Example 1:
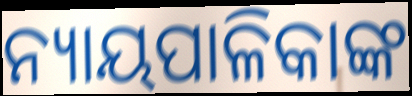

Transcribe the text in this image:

ନ୍ୟାୟପାଳିକାଙ୍କ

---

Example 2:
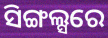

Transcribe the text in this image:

ସିଙ୍ଗଲ୍ସରେ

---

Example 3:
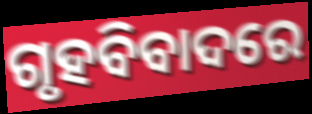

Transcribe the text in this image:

ଗୃହବିବାଦରେ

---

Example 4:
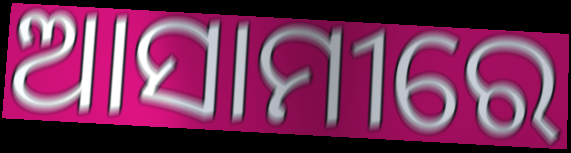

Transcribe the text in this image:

ଆସାମୀରେ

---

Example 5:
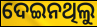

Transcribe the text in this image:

ଦେଇନଥିଲୁ